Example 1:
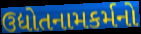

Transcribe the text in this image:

ઉદ્યોતનામકર્મનો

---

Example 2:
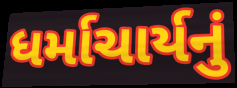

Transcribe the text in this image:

ધર્માચાર્યનું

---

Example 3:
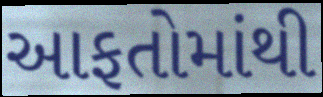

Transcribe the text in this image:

આફતોમાંથી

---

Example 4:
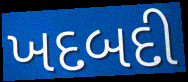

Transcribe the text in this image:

ખદબદી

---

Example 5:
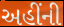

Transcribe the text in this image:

અહીંની